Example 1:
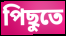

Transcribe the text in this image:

পিছুতে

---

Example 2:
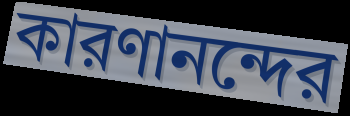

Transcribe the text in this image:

কারণানন্দের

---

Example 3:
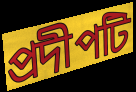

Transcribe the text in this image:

প্রদীপটি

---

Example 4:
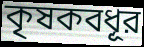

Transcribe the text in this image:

কৃষকবধূর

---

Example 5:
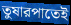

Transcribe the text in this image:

তুষারপাতেই